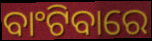
ବାଂଟିବାରେ